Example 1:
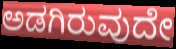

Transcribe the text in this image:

ಅಡಗಿರುವುದೇ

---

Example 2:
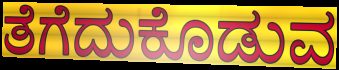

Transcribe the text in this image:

ತೆಗೆದುಕೊಡುವ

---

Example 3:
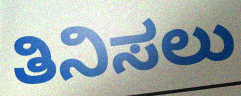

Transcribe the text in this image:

ತಿನಿಸಲು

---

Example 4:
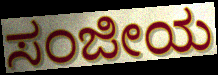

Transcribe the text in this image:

ಸಂಜೀಯ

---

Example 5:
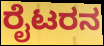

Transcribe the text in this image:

ರೈಟರನ